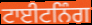
ਟਾਈਟਨਿੰਗ